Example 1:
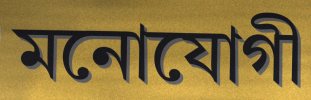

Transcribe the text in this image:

মনোযোগী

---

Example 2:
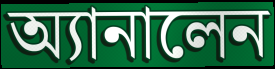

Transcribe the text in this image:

অ্যানালেন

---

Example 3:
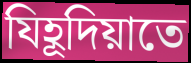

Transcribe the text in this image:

যিহূদিয়াতে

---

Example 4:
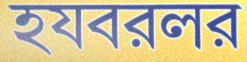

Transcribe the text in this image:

হযবরলর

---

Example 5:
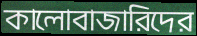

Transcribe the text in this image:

কালোবাজারিদের